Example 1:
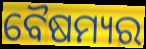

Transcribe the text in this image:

ବୈଷମ୍ଯର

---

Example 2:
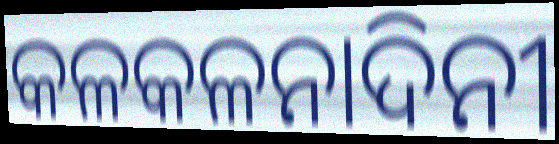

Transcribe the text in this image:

କଳକଳନାଦିନୀ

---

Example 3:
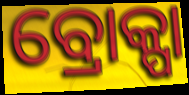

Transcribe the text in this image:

ବ୍ରୋକ୍ପା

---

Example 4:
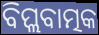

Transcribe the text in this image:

ବିପ୍ଲବାତ୍ମକ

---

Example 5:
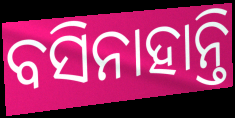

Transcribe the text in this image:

ବସିନାହାନ୍ତି